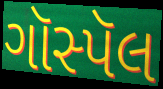
ગૉસ્પૅલ